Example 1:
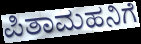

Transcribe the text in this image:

ಪಿತಾಮಹನಿಗೆ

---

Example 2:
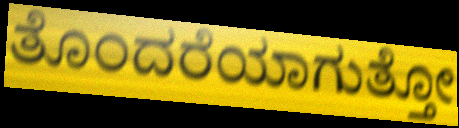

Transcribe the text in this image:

ತೊಂದರೆಯಾಗುತ್ತೋ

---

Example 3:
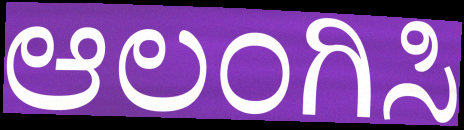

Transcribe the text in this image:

ಆಲಂಗಿಸಿ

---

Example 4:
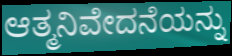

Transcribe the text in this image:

ಆತ್ಮನಿವೇದನೆಯನ್ನು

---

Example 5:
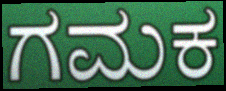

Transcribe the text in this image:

ಗಮಕ